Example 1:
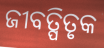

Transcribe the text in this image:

ଜୀବତ୍ପିତୃକ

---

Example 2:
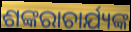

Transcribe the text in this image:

ଶଙ୍କରାଚାର୍ଯ୍ୟଙ୍କ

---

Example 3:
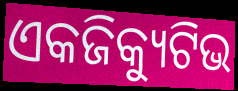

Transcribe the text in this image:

ଏକଜିକ୍ୟୁଟିଭ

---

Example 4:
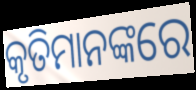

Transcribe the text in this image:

କୃତିମାନଙ୍କରେ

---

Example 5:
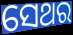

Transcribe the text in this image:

ସେଥର